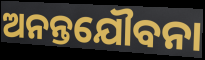
ଅନନ୍ତଯୌବନା